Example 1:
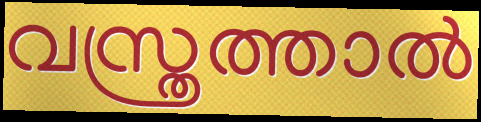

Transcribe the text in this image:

വസ്ത്രത്താൽ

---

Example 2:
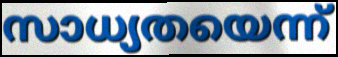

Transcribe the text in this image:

സാധ്യതയെന്ന്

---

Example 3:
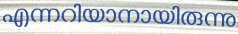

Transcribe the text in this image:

എന്നറിയാനായിരുന്നു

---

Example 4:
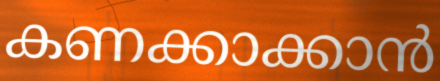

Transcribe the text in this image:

കണക്കാക്കാൻ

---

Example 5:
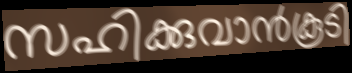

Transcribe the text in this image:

സഹിക്കുവാൻകൂടി